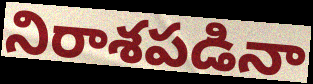
నిరాశపడినా